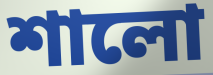
শালো